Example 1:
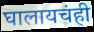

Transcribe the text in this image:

घालायचंही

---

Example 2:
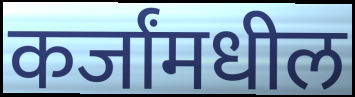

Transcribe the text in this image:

कर्जांमधील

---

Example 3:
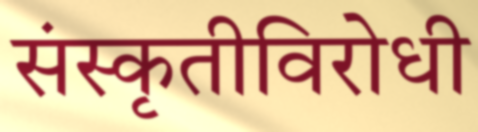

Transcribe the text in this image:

संस्कृतीविरोधी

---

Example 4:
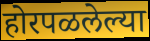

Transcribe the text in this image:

होरपळलेल्या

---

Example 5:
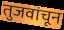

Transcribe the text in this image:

तुजवांचून